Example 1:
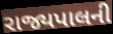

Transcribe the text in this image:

રાજ્યપાલની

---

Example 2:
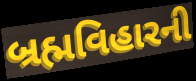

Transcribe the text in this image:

બ્રહ્મવિહારની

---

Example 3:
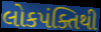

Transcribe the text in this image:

લોકપંક્તિથી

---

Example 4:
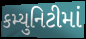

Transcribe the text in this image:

કમ્યુનિટીમાં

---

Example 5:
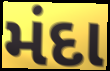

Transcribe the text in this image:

મંદા